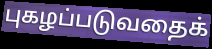
புகழப்படுவதைக்